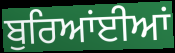
ਬੁਰਿਆਂਈਆਂ